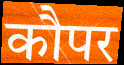
कौपर